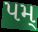
પમ્